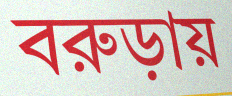
বরুড়ায়